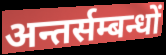
अन्तर्सम्बन्धों